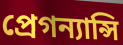
প্রেগন্যান্সি